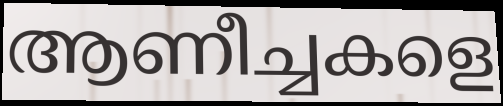
ആണീച്ചകളെ